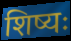
शिष्यः